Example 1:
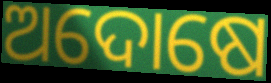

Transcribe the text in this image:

ଅଦୋଷେ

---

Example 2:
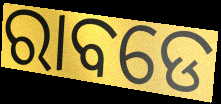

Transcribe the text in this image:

ରାବଡେ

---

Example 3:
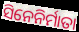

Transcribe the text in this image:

ସିନେନିର୍ମାତା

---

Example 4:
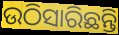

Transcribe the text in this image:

ଉଠିସାରିଛନ୍ତି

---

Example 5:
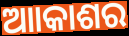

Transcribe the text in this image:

ଆାକାଶର